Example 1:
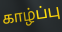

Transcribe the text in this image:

காழ்ப்பு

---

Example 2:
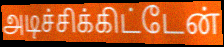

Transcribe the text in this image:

அடிச்சிக்கிட்டேன்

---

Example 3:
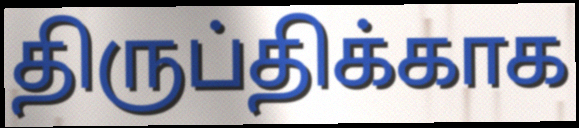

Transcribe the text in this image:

திருப்திக்காக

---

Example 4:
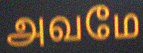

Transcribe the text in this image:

அவமே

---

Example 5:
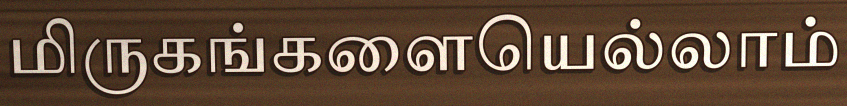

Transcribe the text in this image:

மிருகங்களையெல்லாம்